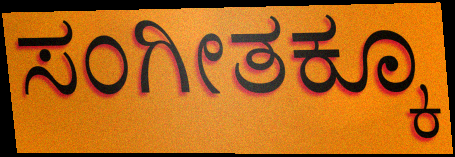
ಸಂಗೀತಕ್ಕೂ